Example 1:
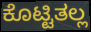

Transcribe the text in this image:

ಕೊಟ್ಟಿತಲ್ಲ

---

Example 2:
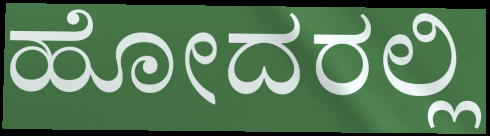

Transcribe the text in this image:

ಹೋದರಲ್ಲಿ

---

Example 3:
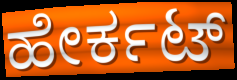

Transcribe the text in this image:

ಹೇರ್ಕಟ್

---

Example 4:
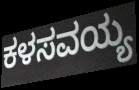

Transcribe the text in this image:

ಕಳಸವಯ್ಯ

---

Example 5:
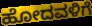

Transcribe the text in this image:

ಹೋದವಳಿಗೆ